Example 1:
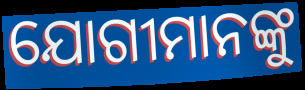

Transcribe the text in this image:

ଯୋଗୀମାନଙ୍କୁ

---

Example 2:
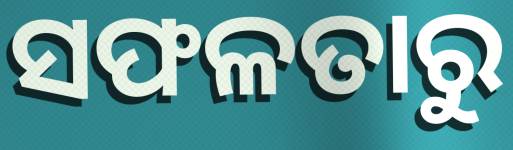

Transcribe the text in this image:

ସଫଳତାରୁ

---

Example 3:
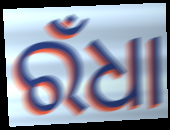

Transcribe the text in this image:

ରଁଧା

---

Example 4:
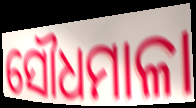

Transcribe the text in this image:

ସୌଧମାଳା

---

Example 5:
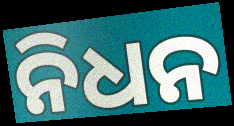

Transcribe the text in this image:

ନିଧନ